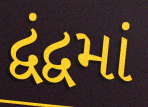
દ્વંદ્વમાં